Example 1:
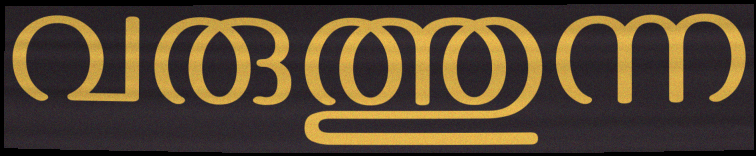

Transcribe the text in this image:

വരുത്തുന്ന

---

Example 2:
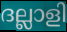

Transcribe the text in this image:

ദല്ലാളി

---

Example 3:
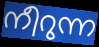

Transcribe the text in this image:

നീറുന്ന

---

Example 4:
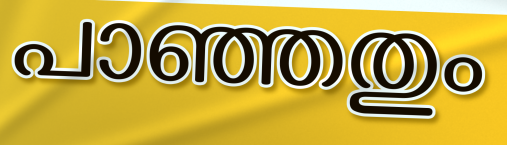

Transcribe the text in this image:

പാഞ്ഞതും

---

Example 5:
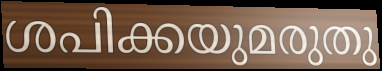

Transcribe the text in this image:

ശപിക്കയുമരുതു